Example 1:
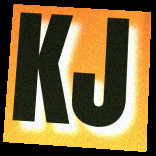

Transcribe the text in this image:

KJ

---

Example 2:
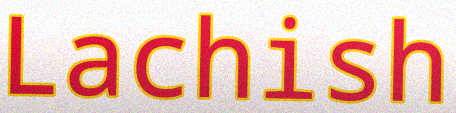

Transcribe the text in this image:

Lachish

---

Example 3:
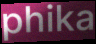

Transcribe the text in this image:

phika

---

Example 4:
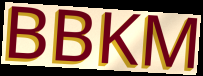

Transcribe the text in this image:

BBKM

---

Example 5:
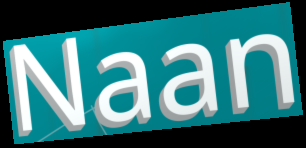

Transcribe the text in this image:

Naan